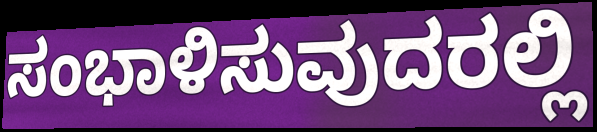
ಸಂಭಾಳಿಸುವುದರಲ್ಲಿ